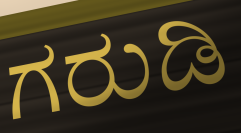
ಗರುಡಿ